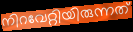
നിറവേറ്റിയിരുന്നത്